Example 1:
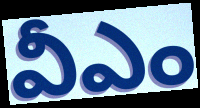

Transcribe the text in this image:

వీఎం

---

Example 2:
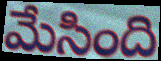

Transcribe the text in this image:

మేసింది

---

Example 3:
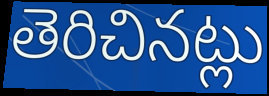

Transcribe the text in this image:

తెరిచినట్లు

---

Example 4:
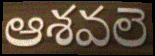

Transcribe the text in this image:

ఆశవలె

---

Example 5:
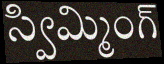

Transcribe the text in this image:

స్విమ్మింగ్